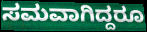
ಸಮವಾಗಿದ್ದರೂ